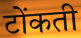
टोंकती